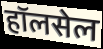
हॉलसेल